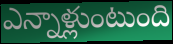
ఎన్నాళ్లుంటుంది